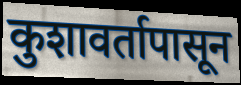
कुशावर्तापासून